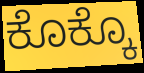
ಕೊಕ್ಕೊ